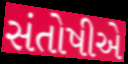
સંતોષીએ